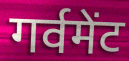
गर्वमेंट